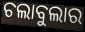
ଚଲାବୁଲାର